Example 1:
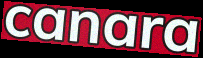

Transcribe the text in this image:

canara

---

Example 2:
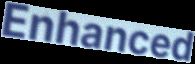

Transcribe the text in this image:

Enhanced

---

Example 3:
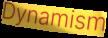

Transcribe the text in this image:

Dynamism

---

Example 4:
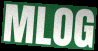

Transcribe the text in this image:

MLOG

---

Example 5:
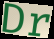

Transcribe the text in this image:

Dr